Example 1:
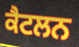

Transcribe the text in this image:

ਕੈਟਲਨ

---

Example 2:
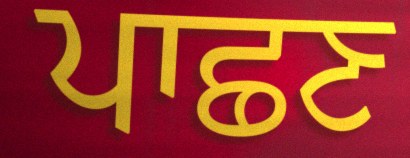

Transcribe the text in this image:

ਪਾਛਣ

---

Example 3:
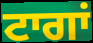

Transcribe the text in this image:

ਟਾਗਾਂ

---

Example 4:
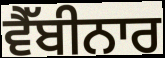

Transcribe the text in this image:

ਵੈੱਬੀਨਾਰ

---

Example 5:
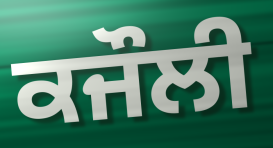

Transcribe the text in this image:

ਕਜੌਲੀ